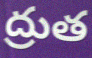
ద్రుత